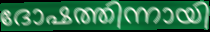
ദോഷത്തിന്നായി